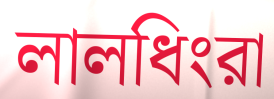
লালধিংরা